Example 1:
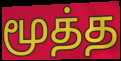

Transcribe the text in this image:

மூத்த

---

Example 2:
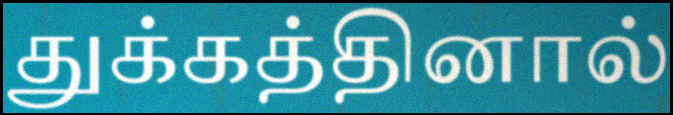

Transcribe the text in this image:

துக்கத்தினால்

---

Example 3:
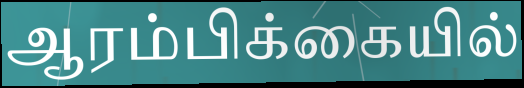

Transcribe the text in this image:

ஆரம்பிக்கையில்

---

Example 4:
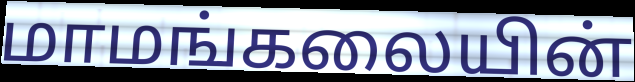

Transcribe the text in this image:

மாமங்கலையின்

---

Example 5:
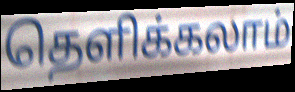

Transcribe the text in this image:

தெளிக்கலாம்